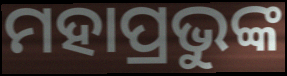
ମହାପ୍ରଭୁଙ୍କ